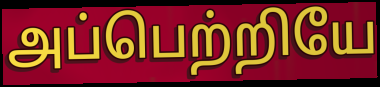
அப்பெற்றியே